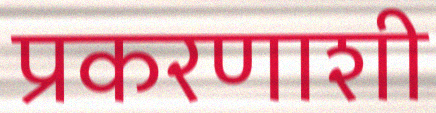
प्रकरणाशी